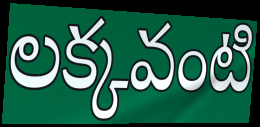
లక్కవంటి